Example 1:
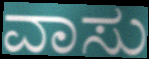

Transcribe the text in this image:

ವಾಸು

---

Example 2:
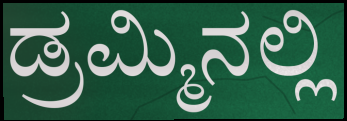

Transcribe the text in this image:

ಡ್ರಮ್ಮಿನಲ್ಲಿ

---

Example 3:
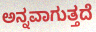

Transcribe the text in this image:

ಅನ್ನವಾಗುತ್ತದೆ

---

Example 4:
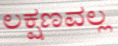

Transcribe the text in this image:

ಲಕ್ಷಣವಲ್ಲ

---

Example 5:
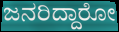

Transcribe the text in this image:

ಜನರಿದ್ದಾರೋ